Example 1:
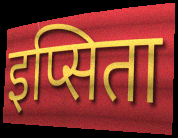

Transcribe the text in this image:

इप्सिता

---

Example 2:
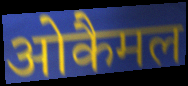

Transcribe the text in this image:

ओकैमल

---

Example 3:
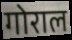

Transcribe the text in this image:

गोराल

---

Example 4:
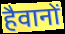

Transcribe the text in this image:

हैवानों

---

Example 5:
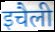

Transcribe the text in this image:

इचैली